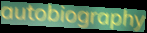
autobiography